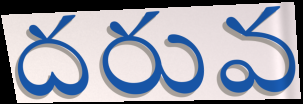
దరువ